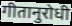
गीतानुरोधी